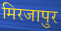
मिरजापुर